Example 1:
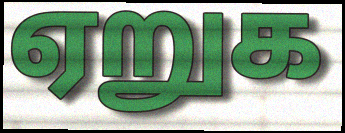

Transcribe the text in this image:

ஏறுக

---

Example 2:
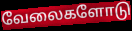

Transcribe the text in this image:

வேலைகளோடு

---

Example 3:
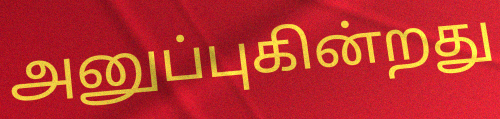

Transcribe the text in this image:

அனுப்புகின்றது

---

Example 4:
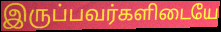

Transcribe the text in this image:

இருப்பவர்களிடையே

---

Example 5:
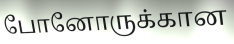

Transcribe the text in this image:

போனோருக்கான